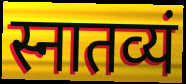
स्नातव्यं